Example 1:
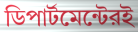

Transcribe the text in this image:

ডিপার্টমেন্টেরই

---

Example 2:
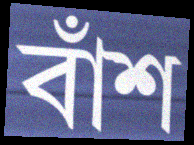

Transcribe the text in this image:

বাঁশ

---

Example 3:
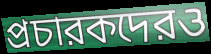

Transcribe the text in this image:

প্রচারকদেরও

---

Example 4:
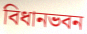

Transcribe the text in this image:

বিধানভবন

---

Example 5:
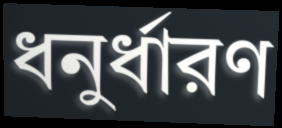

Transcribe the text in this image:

ধনুর্ধারণ